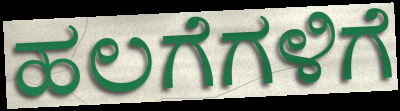
ಹಲಗೆಗಳಿಗೆ